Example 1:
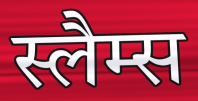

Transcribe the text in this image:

स्लैम्स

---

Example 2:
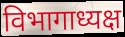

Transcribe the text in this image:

विभागाध्यक्ष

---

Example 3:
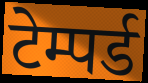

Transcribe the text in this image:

टेम्पर्ड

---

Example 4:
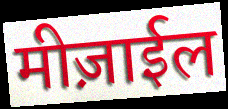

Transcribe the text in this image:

मीज़ाईल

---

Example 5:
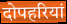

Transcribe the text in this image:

दोपहरियां